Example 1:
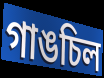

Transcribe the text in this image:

গাঙচিল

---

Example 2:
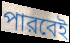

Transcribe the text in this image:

পারবেই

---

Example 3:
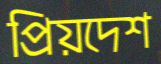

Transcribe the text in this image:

প্রিয়দেশ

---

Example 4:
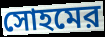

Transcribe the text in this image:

সোহমের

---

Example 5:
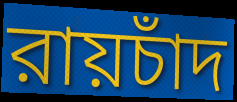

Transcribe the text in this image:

রায়চাঁদ